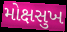
મોક્ષસુખ